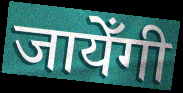
जायेँगी